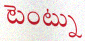
టెంట్ను